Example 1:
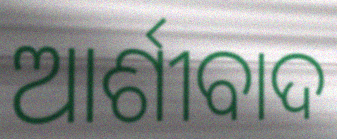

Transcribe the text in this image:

ଆର୍ଶୀବାଦ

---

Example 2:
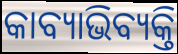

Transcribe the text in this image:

କାବ୍ୟାଭିବ୍ୟକ୍ତି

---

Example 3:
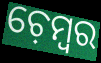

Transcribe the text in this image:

ଚ଼େମ୍ୱର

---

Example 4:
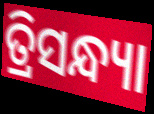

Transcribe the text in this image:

ତ୍ରିସନ୍ଧ୍ୟା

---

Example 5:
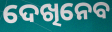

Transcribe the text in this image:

ଦେଖିନେବ